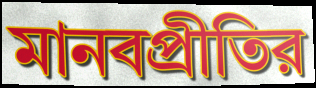
মানবপ্রীতির